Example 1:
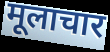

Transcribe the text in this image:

मूलाचार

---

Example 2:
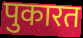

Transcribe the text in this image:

पुकारत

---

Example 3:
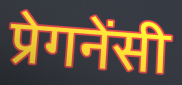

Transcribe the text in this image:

प्रेगनेंसी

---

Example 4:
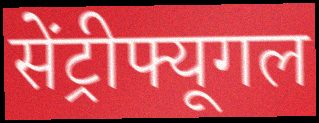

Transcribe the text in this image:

सेंट्रीफ्यूगल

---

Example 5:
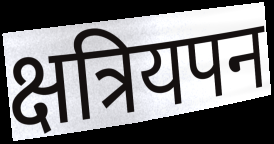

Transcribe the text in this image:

क्षत्रियपन